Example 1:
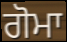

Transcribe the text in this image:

ਗੋਮਾ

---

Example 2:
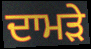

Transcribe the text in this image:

ਦਾਮੜੇ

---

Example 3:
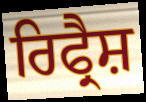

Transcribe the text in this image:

ਰਿਫ੍ਰੈਸ਼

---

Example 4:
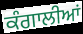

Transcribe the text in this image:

ਕੰਗਾਲੀਆਂ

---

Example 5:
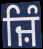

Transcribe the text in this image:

ਜ਼ਿੰ